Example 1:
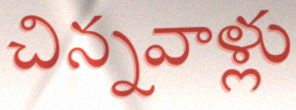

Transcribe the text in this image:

చిన్నవాళ్లు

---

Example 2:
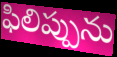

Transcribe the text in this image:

ఫిలిప్పును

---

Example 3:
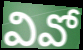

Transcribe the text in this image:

వివో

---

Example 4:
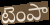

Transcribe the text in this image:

టెంపా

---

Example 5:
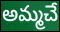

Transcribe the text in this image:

అమ్మచే